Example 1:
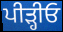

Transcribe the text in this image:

ਪੀੜ੍ਹੀਓ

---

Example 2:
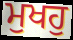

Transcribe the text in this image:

ਮੁਖਹੁ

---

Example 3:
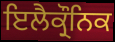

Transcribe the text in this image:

ਇਲੈਕ੍ਰੌਨਿਕ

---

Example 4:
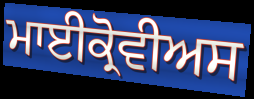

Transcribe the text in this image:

ਮਾਈਕ੍ਰੋਵੀਅਸ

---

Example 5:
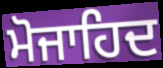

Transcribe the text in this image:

ਮੋਜਾਹਿਦ